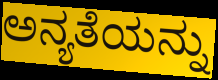
ಅನ್ಯತೆಯನ್ನು